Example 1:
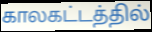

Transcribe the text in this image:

காலகட்டத்தில்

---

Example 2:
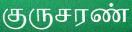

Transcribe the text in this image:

குருசரண்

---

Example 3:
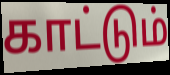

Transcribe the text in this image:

காட்டும்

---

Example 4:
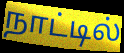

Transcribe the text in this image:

நாட்டில்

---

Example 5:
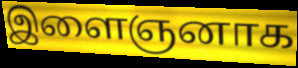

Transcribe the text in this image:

இளைஞனாக